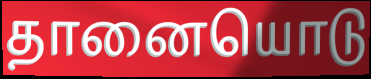
தானையொடு